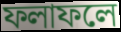
ফলাফলে